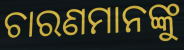
ଚାରଣମାନଙ୍କୁ